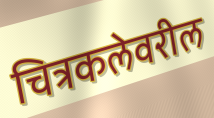
चित्रकलेवरील